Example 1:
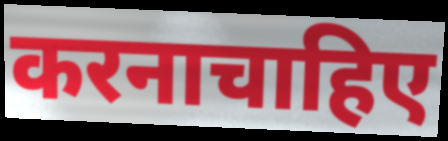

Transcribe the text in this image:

करनाचाहिए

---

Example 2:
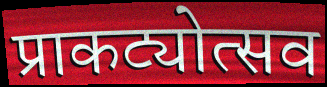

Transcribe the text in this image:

प्राकट्योत्सव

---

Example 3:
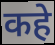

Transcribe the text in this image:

कहे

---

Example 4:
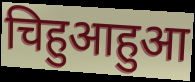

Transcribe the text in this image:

चिहुआहुआ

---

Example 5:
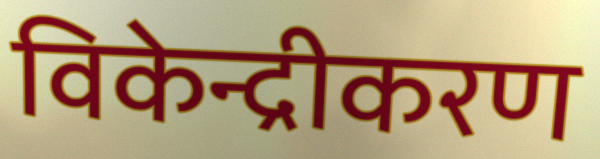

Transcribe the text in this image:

विकेन्द्रीकरण